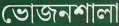
ভোজনশালা